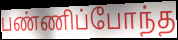
பண்ணிப்போந்த